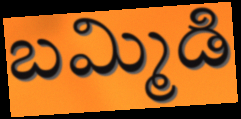
బమ్మిడి